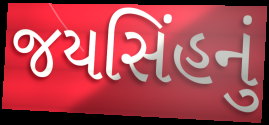
જયસિંહનું